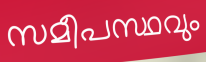
സമീപസ്ഥവും